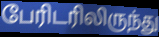
பேரிடரிலிருந்து